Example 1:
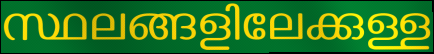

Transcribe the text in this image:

സ്ഥലങ്ങളിലേക്കുള്ള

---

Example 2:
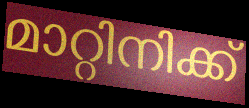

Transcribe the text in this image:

മാറ്റിനിക്ക്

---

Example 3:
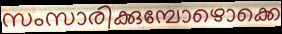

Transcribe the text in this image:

സംസാരിക്കുമ്പോഴൊക്കെ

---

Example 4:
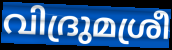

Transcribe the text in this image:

വിദ്രുമശ്രീ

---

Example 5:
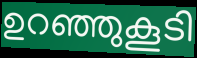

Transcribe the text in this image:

ഉറഞ്ഞുകൂടി